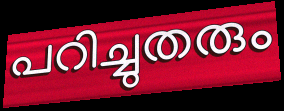
പറിച്ചുതരും